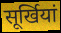
सूर्खियां